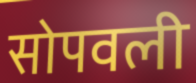
सोपवली